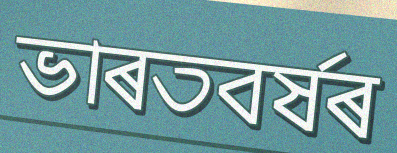
ভাৰতবৰ্ষৰ